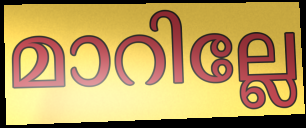
മാറില്ലേ